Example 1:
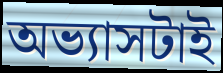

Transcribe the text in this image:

অভ্যাসটাই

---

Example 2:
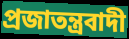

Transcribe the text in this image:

প্রজাতন্ত্রবাদী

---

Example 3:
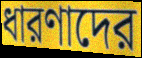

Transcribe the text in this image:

ধারণাদের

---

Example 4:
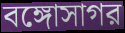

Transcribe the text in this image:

বঙ্গোসাগর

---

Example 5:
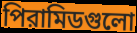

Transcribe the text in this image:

পিরামিডগুলো